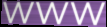
WWW